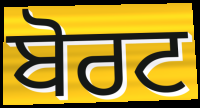
ਬੋਰਟ